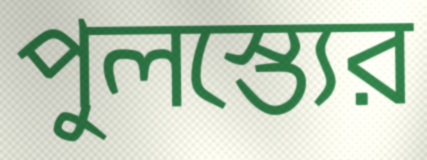
পুলস্ত্যের